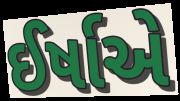
ઈર્ષાએ